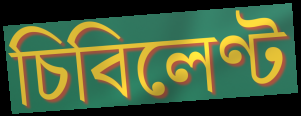
চিবিলেণ্ট